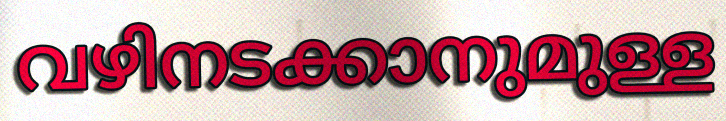
വഴിനടക്കാനുമുള്ള